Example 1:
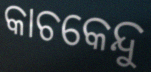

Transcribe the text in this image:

କାଚକେନ୍ଦୁ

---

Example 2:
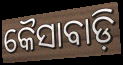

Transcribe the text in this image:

କୈସାବାଡ଼ି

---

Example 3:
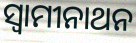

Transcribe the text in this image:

ସ୍ବାମୀନାଥନ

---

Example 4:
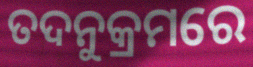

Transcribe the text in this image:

ତଦନୁକ୍ରମରେ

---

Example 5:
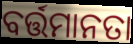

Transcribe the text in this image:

ବର୍ତ୍ତମାନତା